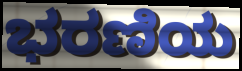
ಭರಣಿಯ